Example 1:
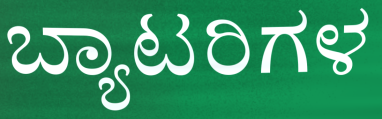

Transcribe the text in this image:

ಬ್ಯಾಟರಿಗಳ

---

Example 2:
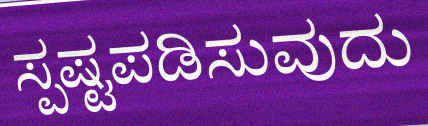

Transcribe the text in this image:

ಸ್ಪಷ್ಟಪಡಿಸುವುದು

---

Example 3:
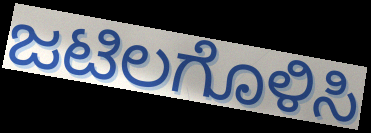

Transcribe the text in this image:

ಜಟಿಲಗೊಳಿಸಿ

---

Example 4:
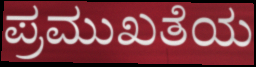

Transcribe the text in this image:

ಪ್ರಮುಖತೆಯ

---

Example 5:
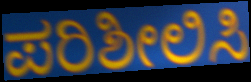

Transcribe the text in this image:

ಪರಿಶೀಲಿಸಿ